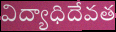
విద్యాధిదేవత